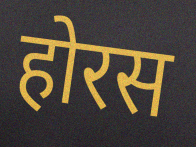
होरस